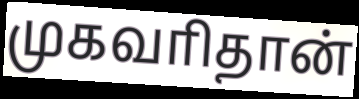
முகவரிதான்